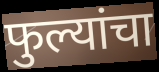
फुल्यांचा